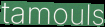
tamouls